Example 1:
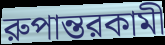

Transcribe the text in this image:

রুপান্তরকামী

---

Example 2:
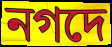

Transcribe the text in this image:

নগদে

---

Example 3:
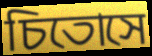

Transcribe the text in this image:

চিতোসে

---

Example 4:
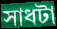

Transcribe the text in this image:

সাধটা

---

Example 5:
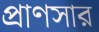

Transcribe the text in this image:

প্রাণসার